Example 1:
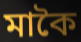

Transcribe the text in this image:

মাকৈ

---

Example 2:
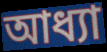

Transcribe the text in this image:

আধ্যা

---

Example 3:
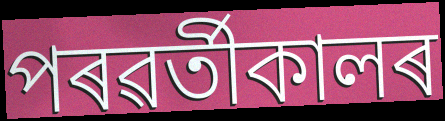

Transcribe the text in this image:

পৰৱৰ্তীকালৰ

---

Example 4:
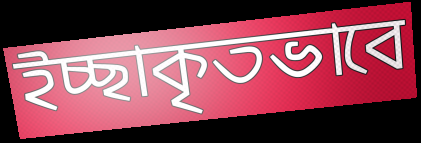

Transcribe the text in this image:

ইচ্ছাকৃতভাবে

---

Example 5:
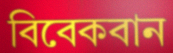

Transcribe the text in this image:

বিবেকবান